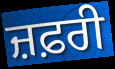
ਜ਼ਫ਼ਰੀ